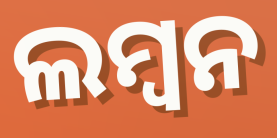
ଲମ୍ବନ